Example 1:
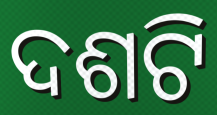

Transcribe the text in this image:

ଦଶଟି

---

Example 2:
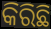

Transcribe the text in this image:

କିରିଛି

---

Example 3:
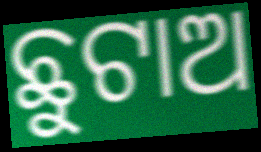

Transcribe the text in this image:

ଛୁଟାଅ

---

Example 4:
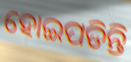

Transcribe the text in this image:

ହୋଇପଡିନ୍ତି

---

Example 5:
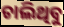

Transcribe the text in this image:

ଚାଲିଥିବୁ